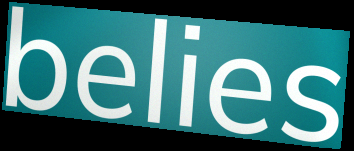
belies